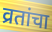
व्रतांचा